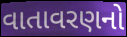
વાતાવરણનો